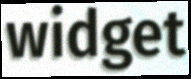
widget